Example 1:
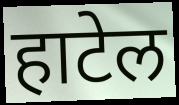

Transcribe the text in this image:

हाटेल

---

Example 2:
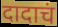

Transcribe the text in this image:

दादाचं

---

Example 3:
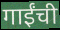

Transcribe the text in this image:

गाईंची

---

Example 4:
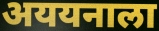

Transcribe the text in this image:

अययनाला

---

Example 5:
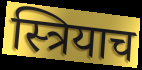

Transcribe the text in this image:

स्त्रियाच